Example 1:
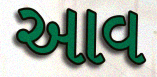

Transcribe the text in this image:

આવ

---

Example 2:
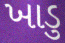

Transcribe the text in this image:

ખાડુ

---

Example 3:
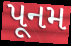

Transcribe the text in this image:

પૂનમ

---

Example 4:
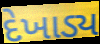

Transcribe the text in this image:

દેખાડ્ય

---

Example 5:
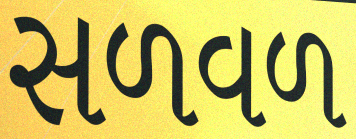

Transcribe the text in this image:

સળવળ